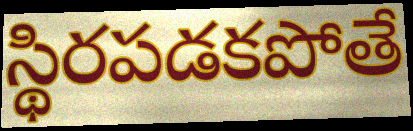
స్థిరపడకపోతే